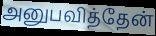
அனுபவித்தேன்